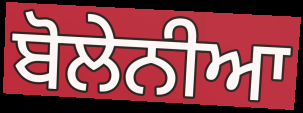
ਬੋਲੇਨੀਆ